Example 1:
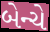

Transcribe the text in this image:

બેન્ચે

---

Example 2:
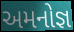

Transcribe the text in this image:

અમનોજ્ઞ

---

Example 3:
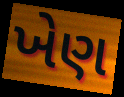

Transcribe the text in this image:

ખેણ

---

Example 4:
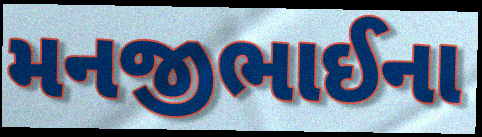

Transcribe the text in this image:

મનજીભાઈના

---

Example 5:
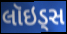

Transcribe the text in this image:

લૉઇડ્સ